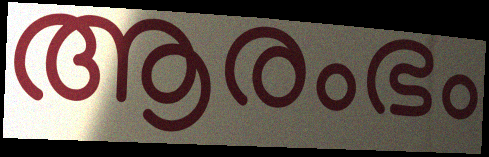
ആരംഭം